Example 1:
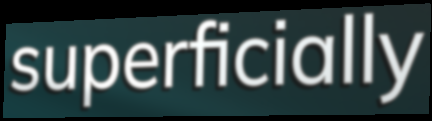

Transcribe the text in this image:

superficially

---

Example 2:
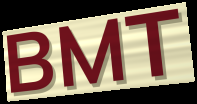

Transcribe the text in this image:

BMT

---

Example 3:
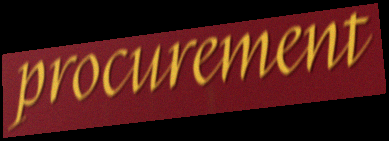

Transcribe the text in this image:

procurement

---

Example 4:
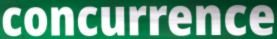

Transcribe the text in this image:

concurrence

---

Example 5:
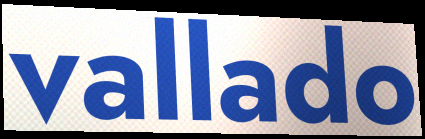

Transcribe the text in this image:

vallado